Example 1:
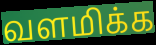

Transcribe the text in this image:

வளமிக்க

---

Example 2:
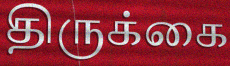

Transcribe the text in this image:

திருக்கை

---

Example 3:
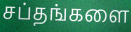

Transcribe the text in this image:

சப்தங்களை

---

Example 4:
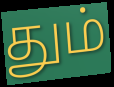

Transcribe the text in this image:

தும்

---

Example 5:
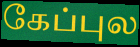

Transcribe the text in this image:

கேப்புல